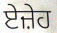
ਏਜ਼ੇਹ